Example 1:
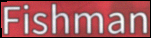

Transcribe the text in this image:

Fishman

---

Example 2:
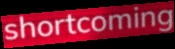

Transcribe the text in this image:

shortcoming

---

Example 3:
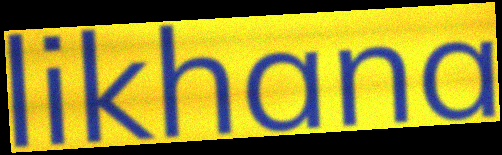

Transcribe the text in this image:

likhana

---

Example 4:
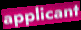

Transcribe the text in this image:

applicant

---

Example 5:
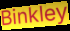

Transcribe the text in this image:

Binkley